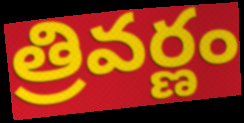
త్రివర్ణం